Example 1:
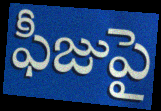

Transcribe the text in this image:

ఫీజుపై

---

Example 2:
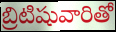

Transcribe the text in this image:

బ్రిటిషువారితో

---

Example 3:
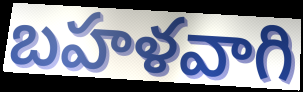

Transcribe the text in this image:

బహళవాగి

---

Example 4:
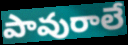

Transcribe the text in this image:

పావురాలే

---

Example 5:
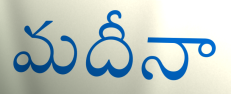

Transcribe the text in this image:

మదీనా